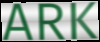
ARK